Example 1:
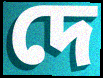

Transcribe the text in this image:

দে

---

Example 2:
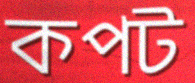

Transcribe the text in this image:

কপট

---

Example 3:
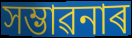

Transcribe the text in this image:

সম্ভাৱনাৰ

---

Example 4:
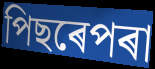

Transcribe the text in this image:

পিছৰেপৰা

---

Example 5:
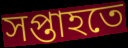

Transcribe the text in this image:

সপ্তাহতে